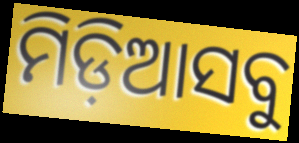
ମିଡ଼ିଆସବୁ